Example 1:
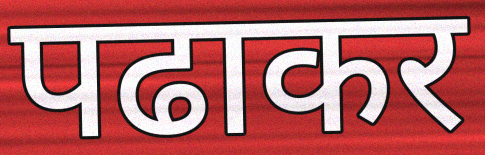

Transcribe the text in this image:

पढाकर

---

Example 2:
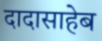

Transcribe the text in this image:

दादासाहेब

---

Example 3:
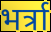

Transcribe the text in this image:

भर्त्रा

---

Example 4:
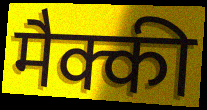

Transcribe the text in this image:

मैक्की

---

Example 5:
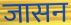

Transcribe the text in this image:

जासन